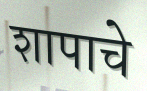
शापाचे